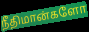
நீதிமான்களோ